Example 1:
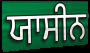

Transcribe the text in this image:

ਯਾਸੀਨ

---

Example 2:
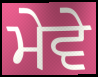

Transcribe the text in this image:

ਮੇਵੇ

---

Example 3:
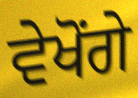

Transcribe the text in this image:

ਵੇਖੋਂਗੇ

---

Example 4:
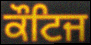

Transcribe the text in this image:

ਕੌਟਿਜ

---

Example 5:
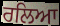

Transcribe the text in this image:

ਰਲਿਆ